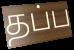
தப்ப